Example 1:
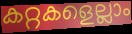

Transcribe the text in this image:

കറ്റകളെല്ലാം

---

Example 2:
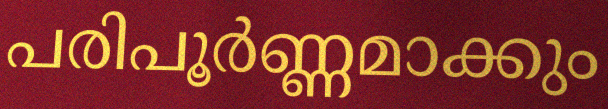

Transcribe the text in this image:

പരിപൂർണ്ണമാക്കും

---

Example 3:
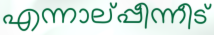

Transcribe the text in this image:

എന്നാല്പ്പീന്നീട്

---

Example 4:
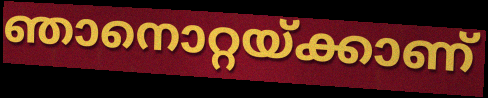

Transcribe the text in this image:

ഞാനൊറ്റയ്ക്കാണ്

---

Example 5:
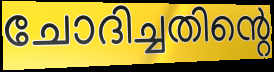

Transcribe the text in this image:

ചോദിച്ചതിന്റെ